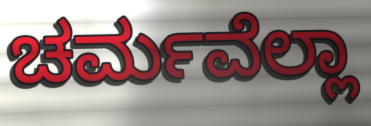
ಚರ್ಮವೆಲ್ಲಾ